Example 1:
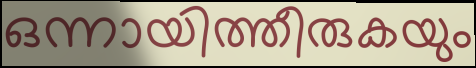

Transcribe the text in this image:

ഒന്നായിത്തീരുകയും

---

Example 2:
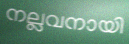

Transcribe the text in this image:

നല്ലവനായി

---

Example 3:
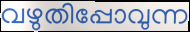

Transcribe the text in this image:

വഴുതിപ്പോവുന്ന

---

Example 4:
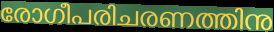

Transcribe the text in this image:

രോഗീപരിചരണത്തിനു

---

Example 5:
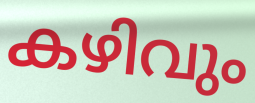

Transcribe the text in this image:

കഴിവും